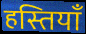
हस्तियॉं